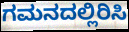
ಗಮನದಲ್ಲಿರಿಸಿ